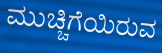
ಮುಚ್ಚಿಗೆಯಿರುವ